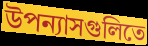
উপন্যাসগুলিতে